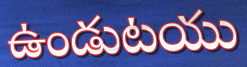
ఉండుటయు